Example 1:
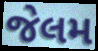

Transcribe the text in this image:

જેલમ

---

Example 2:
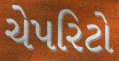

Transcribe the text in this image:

ચેપરિટો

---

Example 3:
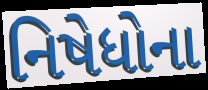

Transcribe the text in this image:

નિષેધોના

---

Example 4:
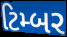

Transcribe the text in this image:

ટિમ્બર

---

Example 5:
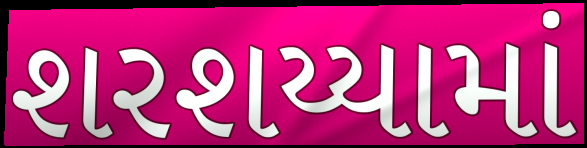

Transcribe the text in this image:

શરશય્યામાં